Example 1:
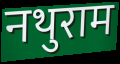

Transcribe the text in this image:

नथुराम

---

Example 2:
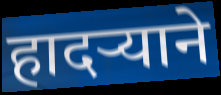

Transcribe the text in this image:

हादऱ्याने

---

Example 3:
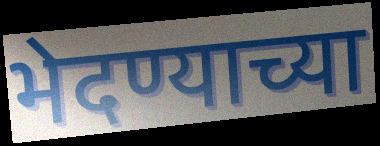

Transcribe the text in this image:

भेदण्याच्या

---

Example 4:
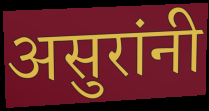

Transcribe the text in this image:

असुरांनी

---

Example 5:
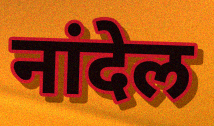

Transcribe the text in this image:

नांदेल